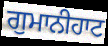
ਗੁਮਾਨੀਹਾਟ